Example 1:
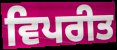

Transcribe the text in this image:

ਵਿਪਰੀਤ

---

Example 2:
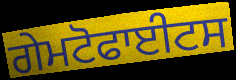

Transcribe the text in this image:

ਗੇਮਟੋਫਾਈਟਸ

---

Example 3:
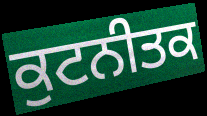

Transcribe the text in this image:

ਕੁਟਨੀਤਕ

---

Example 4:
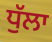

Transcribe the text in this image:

ਧੁੱਲਾ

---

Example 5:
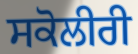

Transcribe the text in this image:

ਸਕੋਲੀਰੀ